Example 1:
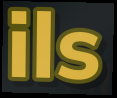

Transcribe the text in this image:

ils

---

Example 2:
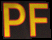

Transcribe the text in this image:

PF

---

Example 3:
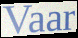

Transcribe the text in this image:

Vaar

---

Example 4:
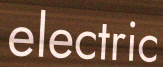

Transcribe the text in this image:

electric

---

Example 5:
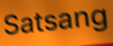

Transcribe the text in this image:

Satsang